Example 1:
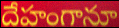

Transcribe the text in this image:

దేహంగానూ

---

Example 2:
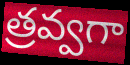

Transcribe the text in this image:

త్రవ్వగా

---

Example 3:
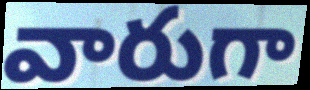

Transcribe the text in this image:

వారుగా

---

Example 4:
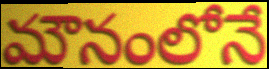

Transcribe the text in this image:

మౌనంలోనే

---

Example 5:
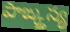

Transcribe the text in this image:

పాఙ్క్తస్య